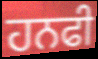
ਹਨਫੀ